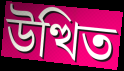
উত্থিত